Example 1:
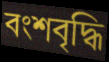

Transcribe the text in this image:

বংশবৃদ্ধি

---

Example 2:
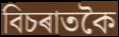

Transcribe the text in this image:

বিচৰাতকৈ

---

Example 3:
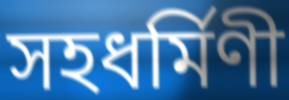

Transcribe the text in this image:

সহধৰ্মিণী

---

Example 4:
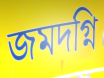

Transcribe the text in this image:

জমদগ্নি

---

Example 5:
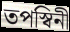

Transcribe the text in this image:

তপস্বিনী